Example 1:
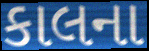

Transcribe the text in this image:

કાલના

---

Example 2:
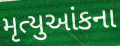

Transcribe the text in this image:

મૃત્યુઆંકના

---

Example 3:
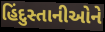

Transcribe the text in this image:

હિંદુસ્તાનીઓને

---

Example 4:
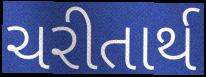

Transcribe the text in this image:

ચરીતાર્થ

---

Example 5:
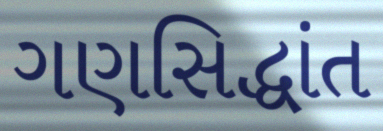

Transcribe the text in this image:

ગણસિદ્ધાંત